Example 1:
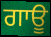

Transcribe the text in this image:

ਗਾਊ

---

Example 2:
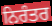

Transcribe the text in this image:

ਨਿਰੰਤਰ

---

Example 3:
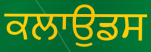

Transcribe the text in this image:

ਕਲਾਉਡਸ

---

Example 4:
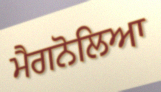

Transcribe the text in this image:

ਮੈਗਨੋਲਿਆ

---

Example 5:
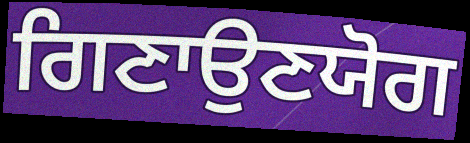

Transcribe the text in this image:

ਗਿਣਾਉਣਯੋਗ